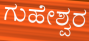
ಗುಹೇಶ್ವರ